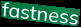
fastness